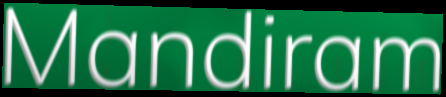
Mandiram